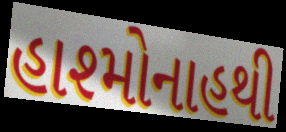
હાશ્મોનાહથી